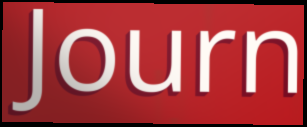
Journ